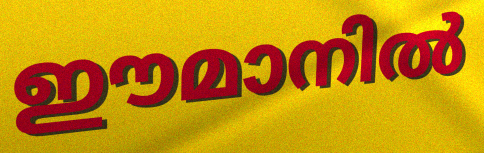
ഈമാനിൽ